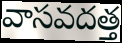
వాసవదత్త